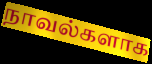
நாவல்களாக